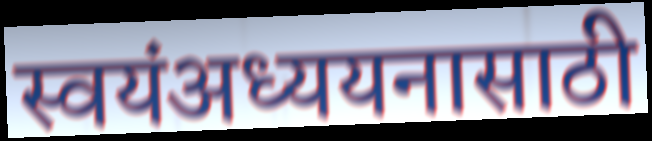
स्वयंअध्ययनासाठी